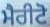
ਮੈਰੀਟੋ